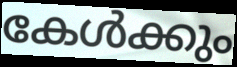
കേൾക്കും